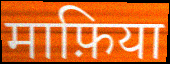
माफ़िया